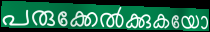
പരുക്കേൽക്കുകയോ